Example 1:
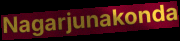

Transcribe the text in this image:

Nagarjunakonda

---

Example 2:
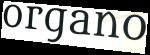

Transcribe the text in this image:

organo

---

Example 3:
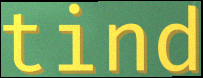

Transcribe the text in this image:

tind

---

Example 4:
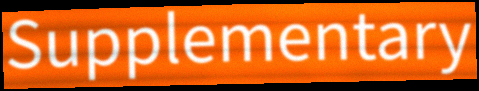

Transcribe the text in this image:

Supplementary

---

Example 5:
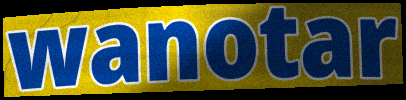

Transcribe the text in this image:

wanotar